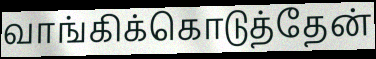
வாங்கிக்கொடுத்தேன்